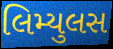
લિમ્યુલસ